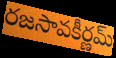
రజసావకీర్ణమ్